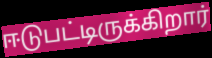
ஈடுபட்டிருக்கிறார்